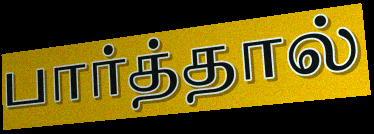
பார்த்தால்